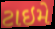
ટાઇમે